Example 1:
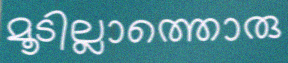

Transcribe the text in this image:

മൂടില്ലാത്തൊരു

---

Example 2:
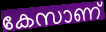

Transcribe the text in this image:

കേസാണ്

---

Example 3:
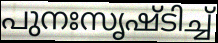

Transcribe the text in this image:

പുനഃസൃഷ്ടിച്ച്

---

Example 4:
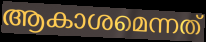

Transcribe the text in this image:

ആകാശമെന്നത്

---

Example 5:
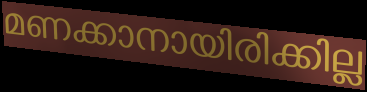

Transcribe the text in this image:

മണക്കാനായിരിക്കില്ല